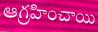
ఆగ్రహించాయి